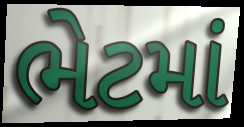
ભેટમાં